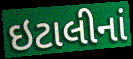
ઇટાલીનાં